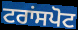
ਟਰਾਂਸਪੋਟ